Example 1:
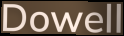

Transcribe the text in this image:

Dowell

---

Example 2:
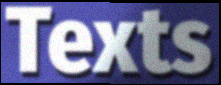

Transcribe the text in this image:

Texts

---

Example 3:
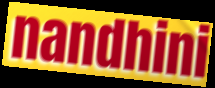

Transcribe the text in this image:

nandhini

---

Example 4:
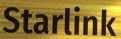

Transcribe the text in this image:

Starlink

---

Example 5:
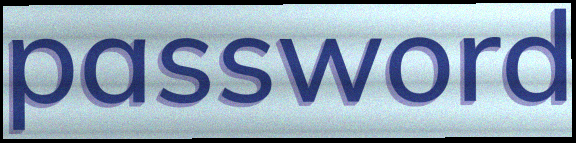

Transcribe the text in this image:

password